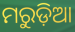
ମରୁଡ଼ିଆ